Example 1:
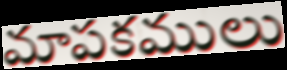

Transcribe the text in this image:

మాపకములు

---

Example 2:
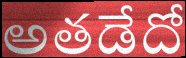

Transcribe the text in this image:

అతడేదో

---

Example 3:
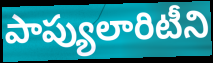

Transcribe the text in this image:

పాప్యులారిటీని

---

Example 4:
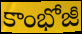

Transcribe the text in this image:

కాంభోజీ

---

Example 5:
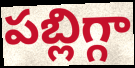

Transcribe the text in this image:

పబ్లిగ్గా